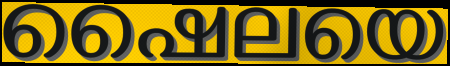
ഷൈലയെ